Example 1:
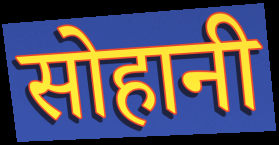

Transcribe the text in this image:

सोहानी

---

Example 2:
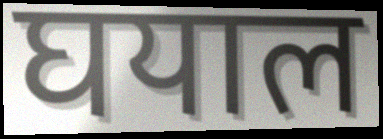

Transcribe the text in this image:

घयाल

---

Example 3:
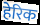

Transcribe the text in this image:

हेरिक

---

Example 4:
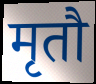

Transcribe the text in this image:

मृतौ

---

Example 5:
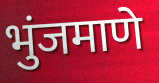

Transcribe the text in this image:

भुंजमाणे